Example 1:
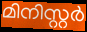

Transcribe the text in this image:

മിനിസ്റ്റർ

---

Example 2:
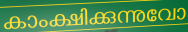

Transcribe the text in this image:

കാംക്ഷിക്കുന്നുവോ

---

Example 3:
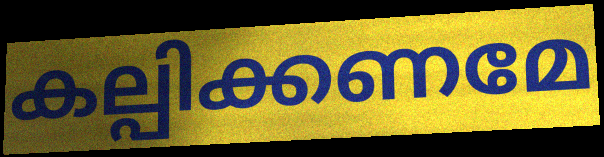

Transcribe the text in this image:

കല്പിക്കണമേ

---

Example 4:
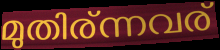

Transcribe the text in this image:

മുതിര്ന്നവര്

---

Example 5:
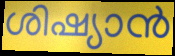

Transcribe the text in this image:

ശിഷ്യാൻ